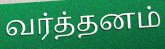
வர்த்தனம்